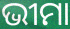
ଭୀମା